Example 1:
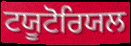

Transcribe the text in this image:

ਟਯੂਟੋਰਿਯਲ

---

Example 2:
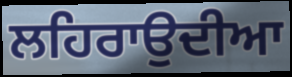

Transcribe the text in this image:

ਲਹਿਰਾਉਦੀਆ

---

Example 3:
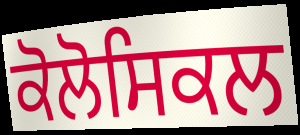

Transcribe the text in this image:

ਕੋਲੋਸਿਕਲ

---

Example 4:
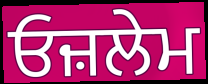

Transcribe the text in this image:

ਓਜ਼ਲੇਮ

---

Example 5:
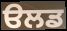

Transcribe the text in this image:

ੳਲਡ